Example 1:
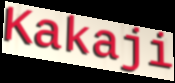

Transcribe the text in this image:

Kakaji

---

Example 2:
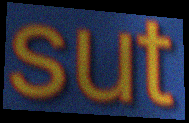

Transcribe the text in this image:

sut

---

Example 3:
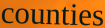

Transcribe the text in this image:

counties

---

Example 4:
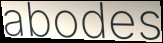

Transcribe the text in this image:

abodes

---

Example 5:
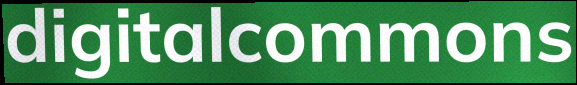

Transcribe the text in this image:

digitalcommons